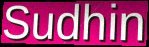
Sudhin